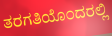
ತರಗತಿಯೊಂದರಲ್ಲಿ